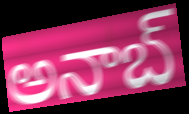
అనాబ్